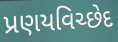
પ્રણયવિચ્છેદ